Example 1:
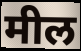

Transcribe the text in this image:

मील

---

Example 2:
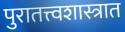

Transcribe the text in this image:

पुरातत्त्वशास्त्रात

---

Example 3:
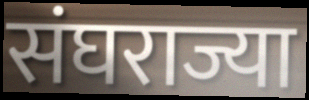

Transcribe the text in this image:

संघराज्या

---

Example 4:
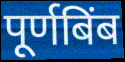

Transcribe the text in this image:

पूर्णबिंब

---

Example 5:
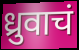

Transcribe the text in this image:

ध्रुवाचं